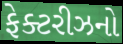
ફેક્ટરીઝનો